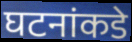
घटनांकडे